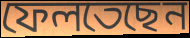
ফেলতেছেন